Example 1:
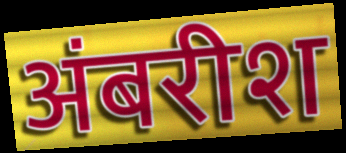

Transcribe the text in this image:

अंबरीश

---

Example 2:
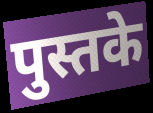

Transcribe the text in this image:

पुस्तके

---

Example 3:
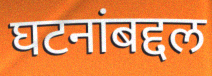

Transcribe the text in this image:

घटनांबद्दल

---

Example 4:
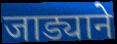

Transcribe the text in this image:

जाड्याने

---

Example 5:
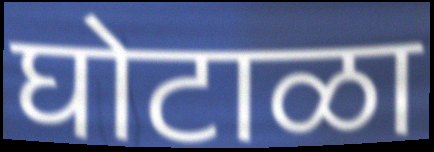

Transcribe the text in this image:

घोटाळा